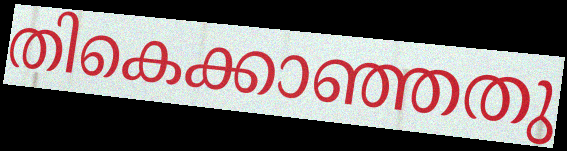
തികെക്കാഞ്ഞതു